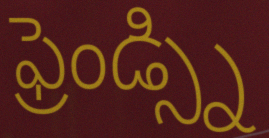
ఫ్రెండ్స్ని